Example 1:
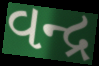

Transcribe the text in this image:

વન્દ્ર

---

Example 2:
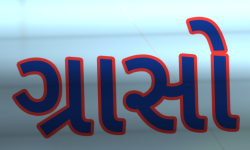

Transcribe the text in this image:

ગ્રાસો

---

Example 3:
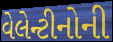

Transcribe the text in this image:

વેલેન્ટીનોની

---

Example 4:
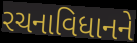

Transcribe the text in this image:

રચનાવિધાનને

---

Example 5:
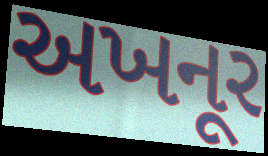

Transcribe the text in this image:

અખનૂર